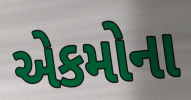
એકમોના